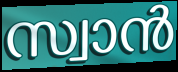
സ്വാൻ